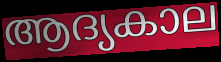
ആദ്യകാല